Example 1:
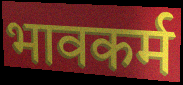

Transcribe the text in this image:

भावकर्म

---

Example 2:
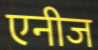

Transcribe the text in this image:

एनीज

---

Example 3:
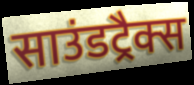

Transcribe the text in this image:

साउंडट्रैक्स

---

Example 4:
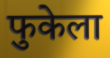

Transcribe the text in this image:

फुकेला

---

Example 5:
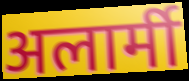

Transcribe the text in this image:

अलार्मी